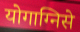
योगाग्निसे